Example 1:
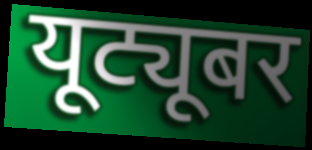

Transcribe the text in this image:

यूट्यूबर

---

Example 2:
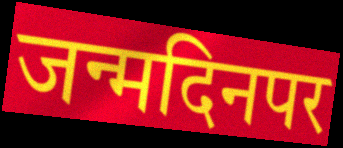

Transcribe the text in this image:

जन्मदिनपर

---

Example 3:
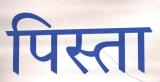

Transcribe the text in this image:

पिस्ता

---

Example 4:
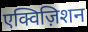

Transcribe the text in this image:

एक्विज़िशन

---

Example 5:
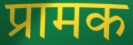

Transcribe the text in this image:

प्रामक